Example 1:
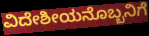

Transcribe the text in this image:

ವಿದೇಶೀಯನೊಬ್ಬನಿಗೆ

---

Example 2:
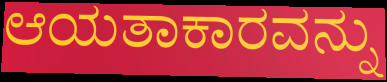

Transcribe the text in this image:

ಆಯತಾಕಾರವನ್ನು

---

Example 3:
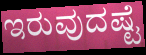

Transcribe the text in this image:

ಇರುವುದಷ್ಟೆ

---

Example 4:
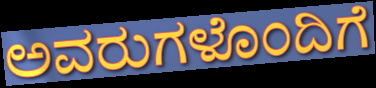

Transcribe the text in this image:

ಅವರುಗಳೊಂದಿಗೆ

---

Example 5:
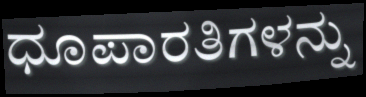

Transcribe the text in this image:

ಧೂಪಾರತಿಗಳನ್ನು